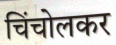
चिंचोलकर